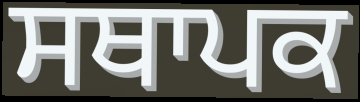
ਸਥਾਪਕ